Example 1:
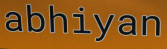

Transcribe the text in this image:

abhiyan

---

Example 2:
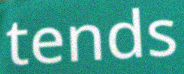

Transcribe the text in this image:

tends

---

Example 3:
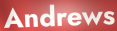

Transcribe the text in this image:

Andrews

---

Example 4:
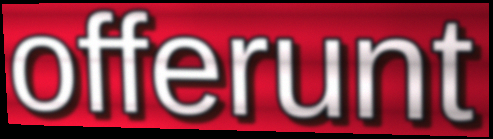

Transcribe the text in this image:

offerunt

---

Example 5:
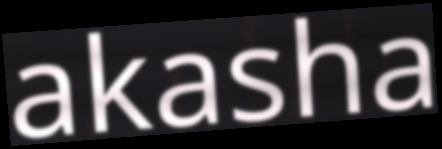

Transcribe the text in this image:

akasha